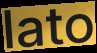
lato